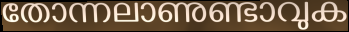
തോന്നലാണുണ്ടാവുക